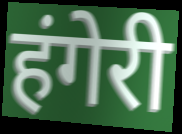
हंगेरी